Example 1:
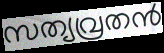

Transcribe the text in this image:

സത്യവ്രതൻ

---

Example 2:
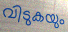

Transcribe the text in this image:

വിടുകയും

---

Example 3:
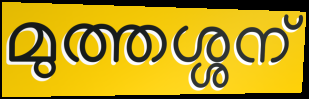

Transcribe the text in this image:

മുത്തശ്ശന്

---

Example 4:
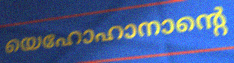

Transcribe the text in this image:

യെഹോഹാനാന്റെ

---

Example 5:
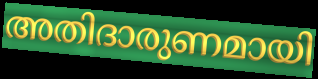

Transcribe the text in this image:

അതിദാരുണമായി